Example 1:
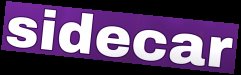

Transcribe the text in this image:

sidecar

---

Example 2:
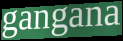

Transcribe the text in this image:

gangana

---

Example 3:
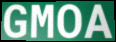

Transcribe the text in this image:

GMOA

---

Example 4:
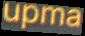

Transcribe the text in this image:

upma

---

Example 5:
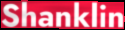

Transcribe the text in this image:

Shanklin